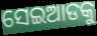
ସେଇଆଡକୁ